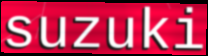
suzuki